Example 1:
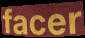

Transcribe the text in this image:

facer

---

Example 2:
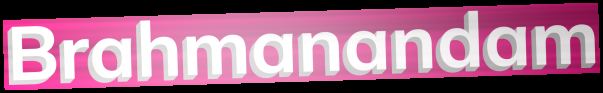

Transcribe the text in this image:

Brahmanandam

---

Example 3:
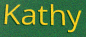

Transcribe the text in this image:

Kathy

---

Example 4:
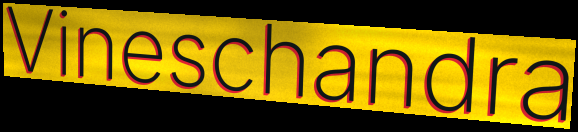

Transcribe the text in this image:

Vineschandra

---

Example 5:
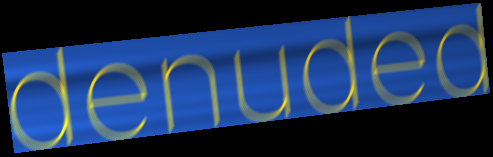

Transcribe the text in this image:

denuded